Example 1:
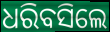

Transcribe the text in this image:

ଧରିବସିଲେ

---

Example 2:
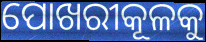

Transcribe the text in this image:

ପୋଖରୀକୂଳକୁ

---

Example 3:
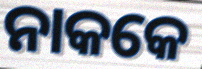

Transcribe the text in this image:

ନାକକେ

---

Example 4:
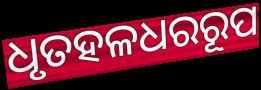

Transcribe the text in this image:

ଧୃତହଳଧରରୂପ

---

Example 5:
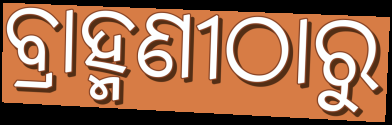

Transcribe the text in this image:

ବ୍ରାହ୍ମଣୀଠାରୁ